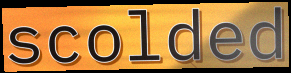
scolded